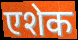
एशेक